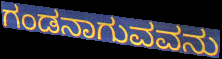
ಗಂಡನಾಗುವವನು